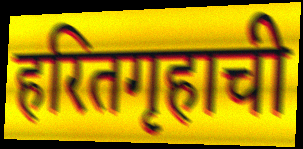
हरितगृहाची